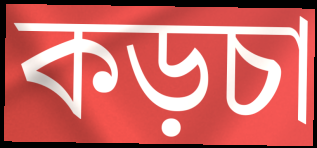
কড়চা